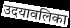
उदयावलिका